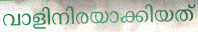
വാളിനിരയാക്കിയത്